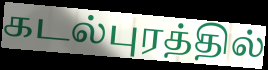
கடல்புரத்தில்